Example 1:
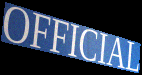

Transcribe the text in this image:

OFFICIAL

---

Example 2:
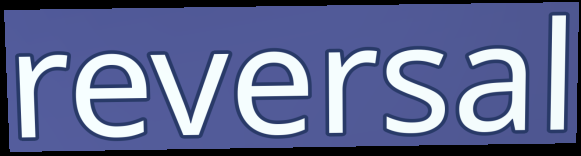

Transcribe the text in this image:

reversal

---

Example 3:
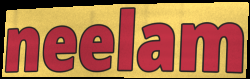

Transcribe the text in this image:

neelam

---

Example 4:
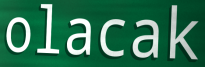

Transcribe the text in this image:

olacak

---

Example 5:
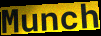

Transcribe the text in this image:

Munch